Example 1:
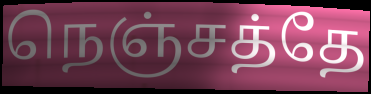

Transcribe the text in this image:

நெஞ்சத்தே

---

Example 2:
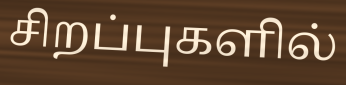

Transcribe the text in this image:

சிறப்புகளில்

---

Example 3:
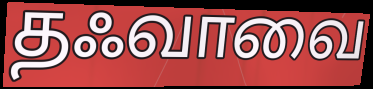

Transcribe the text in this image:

தஃவாவை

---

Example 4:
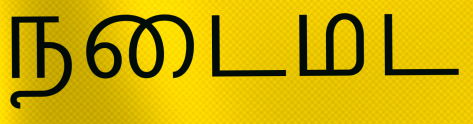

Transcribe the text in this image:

நடைமட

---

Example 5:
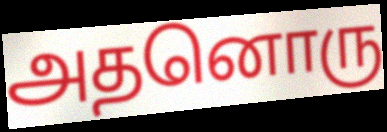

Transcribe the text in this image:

அதனொரு